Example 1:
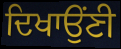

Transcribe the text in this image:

ਦਿਖਾਉਂਣੀ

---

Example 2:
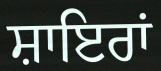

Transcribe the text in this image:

ਸ਼ਾਇਰਾਂ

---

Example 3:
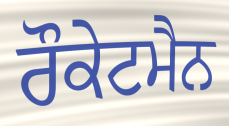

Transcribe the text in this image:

ਰੌਕੇਟਮੈਨ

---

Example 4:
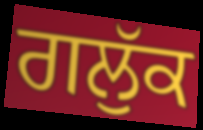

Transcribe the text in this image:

ਗਲੁੱਕ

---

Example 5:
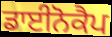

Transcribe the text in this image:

ਡਾਈਨੋਕੈਪ